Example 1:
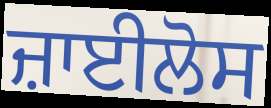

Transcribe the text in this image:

ਜ਼ਾਈਲੋਸ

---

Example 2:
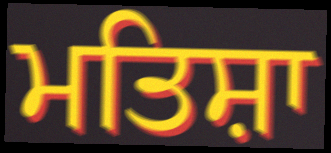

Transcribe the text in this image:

ਮਤਿਸ਼ਾ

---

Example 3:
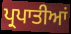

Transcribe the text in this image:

ਪ੍ਰਪਾਤੀਆਂ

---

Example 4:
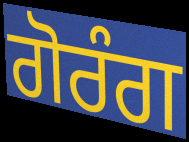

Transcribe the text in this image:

ਗੋਰੰਗ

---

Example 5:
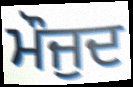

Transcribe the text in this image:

ਮੌਜੁਦ